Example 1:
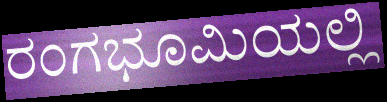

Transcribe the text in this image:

ರಂಗಭೂಮಿಯಲ್ಲಿ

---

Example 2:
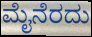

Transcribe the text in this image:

ಮೈನೆರದು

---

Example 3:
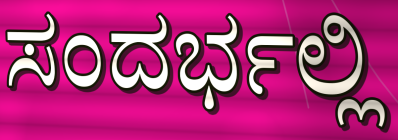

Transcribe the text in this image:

ಸಂದರ್ಭಲ್ಲಿ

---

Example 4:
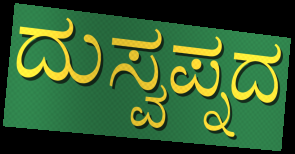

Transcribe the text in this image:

ದುಸ್ವಪ್ನದ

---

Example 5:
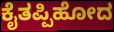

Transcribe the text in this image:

ಕೈತಪ್ಪಿಹೋದ